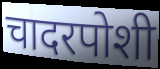
चादरपोशी